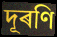
দূৰণি